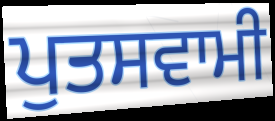
ਪੁਤਸਵਾਮੀ